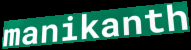
manikanth